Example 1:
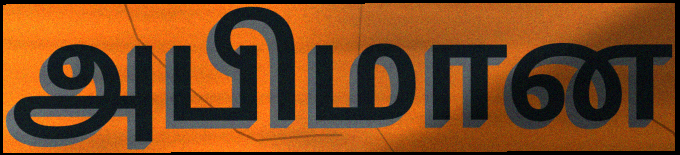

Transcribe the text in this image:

அபிமான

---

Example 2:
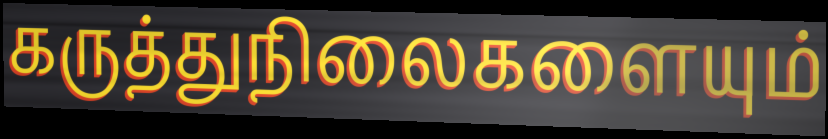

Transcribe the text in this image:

கருத்துநிலைகளையும்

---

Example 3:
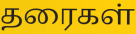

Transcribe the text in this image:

தரைகள்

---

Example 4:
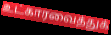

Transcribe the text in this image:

உட்காரவைத்துக்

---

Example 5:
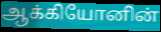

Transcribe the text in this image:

ஆக்கியோனின்